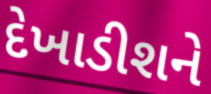
દેખાડીશને